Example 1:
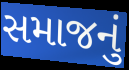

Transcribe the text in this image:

સમાજનું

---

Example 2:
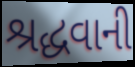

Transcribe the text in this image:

શ્રદ્ધવાની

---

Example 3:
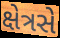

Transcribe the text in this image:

ક્ષેત્રસે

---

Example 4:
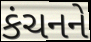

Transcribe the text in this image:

કંચનને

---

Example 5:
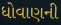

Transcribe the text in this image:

ધોવાણની